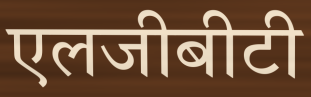
एलजीबीटी